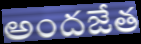
అందజేత